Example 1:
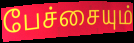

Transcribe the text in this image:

பேச்சையும்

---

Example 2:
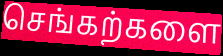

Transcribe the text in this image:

செங்கற்களை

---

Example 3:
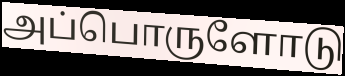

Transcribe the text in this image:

அப்பொருளோடு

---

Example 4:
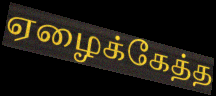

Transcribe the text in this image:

ஏழைக்கேத்த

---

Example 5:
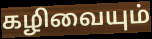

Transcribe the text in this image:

கழிவையும்